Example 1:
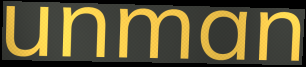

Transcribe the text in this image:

unman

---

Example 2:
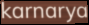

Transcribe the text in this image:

karnarya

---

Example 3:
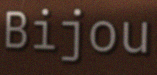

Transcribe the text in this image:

Bijou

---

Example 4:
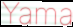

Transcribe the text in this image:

Yama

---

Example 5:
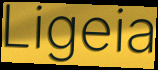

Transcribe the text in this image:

Ligeia